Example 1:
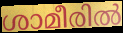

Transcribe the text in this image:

ശാമീരിൽ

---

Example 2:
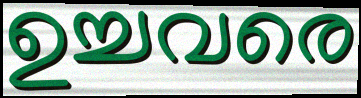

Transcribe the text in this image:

ഉച്ചവരെ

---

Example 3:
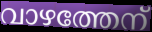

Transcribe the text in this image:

വാഴത്തേന്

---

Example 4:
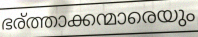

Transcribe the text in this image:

ഭര്ത്താക്കന്മാരെയും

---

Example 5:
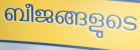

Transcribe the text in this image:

ബീജങ്ങളുടെ